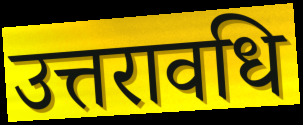
उत्तरावधि